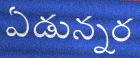
ఏడున్నర